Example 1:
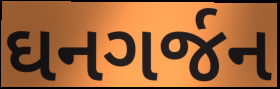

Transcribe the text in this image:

ઘનગર્જન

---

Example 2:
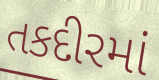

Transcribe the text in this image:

તકદીરમાં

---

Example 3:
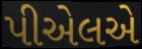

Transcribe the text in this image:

પીએલએ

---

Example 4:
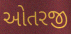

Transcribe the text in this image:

ઓતરજી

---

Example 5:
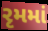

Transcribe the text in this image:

રૃમમાં